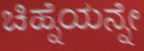
ಚಿಹ್ನೆಯನ್ನೇ